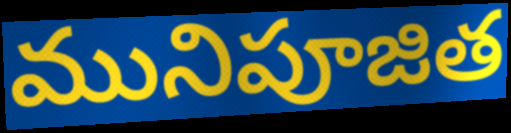
మునిపూజిత